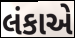
લંકાએ